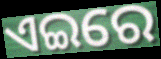
ଏଇରେ